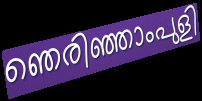
ഞെരിഞ്ഞാംപുളി